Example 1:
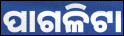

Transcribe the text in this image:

ପାଗଳିଟା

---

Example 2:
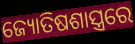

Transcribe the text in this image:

ଜ୍ୟୋତିଷଶାସ୍ତ୍ରରେ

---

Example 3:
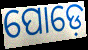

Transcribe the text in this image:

ପୋଡ଼େ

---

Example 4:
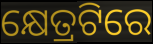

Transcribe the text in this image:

କ୍ଷେତ୍ରଟିରେ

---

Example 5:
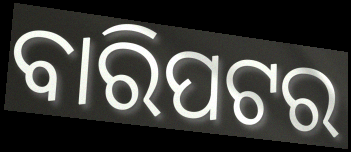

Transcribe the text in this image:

ବାରିପଟର